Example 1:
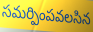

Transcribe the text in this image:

సమర్పింపవలసిన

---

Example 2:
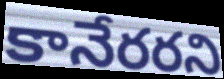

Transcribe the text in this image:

కానేరరని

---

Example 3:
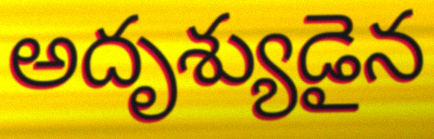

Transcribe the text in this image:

అదృశ్యుడైన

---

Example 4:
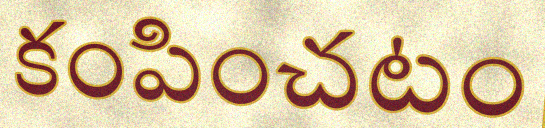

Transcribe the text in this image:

కంపించటం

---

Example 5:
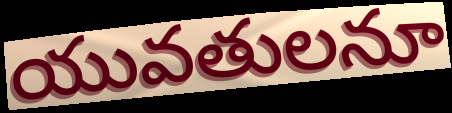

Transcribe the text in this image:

యువతులనూ